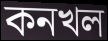
কনখল